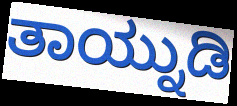
ತಾಯ್ನುಡಿ